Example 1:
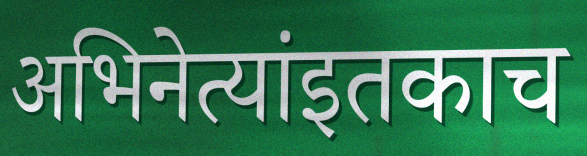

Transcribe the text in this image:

अभिनेत्यांइतकाच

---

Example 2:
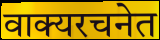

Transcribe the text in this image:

वाक्यरचनेत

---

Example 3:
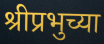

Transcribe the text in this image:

श्रीप्रभुच्या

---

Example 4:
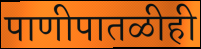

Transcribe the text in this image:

पाणीपातळीही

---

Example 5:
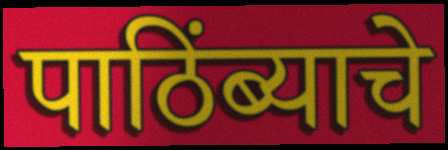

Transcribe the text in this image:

पाठिंब्याचे